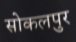
सोकलपुर